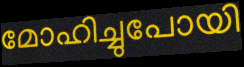
മോഹിച്ചുപോയി